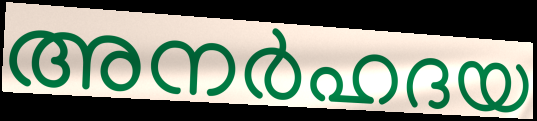
അനർഹദയ